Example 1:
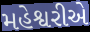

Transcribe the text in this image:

મહેશ્વરીએ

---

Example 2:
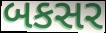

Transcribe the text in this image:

બકસર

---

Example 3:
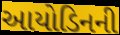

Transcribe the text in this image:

આયોડિનની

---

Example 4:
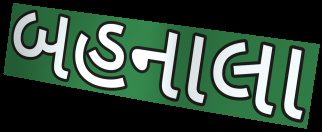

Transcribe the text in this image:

બહનાલા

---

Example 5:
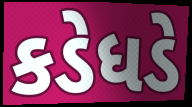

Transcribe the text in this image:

કડેધડે